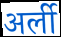
अर्ली